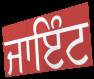
ਜਾਇੰਟ